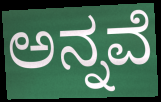
ಅನ್ನವೆ